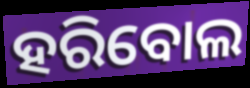
ହରିବୋଲ